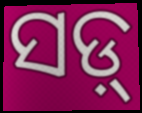
ସଡ଼୍